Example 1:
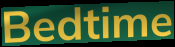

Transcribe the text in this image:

Bedtime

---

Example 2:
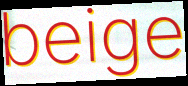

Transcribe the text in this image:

beige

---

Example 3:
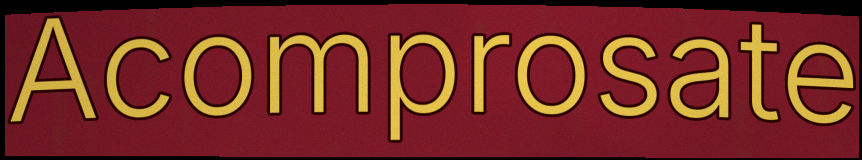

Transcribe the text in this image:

Acomprosate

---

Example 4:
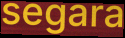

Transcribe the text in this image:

segara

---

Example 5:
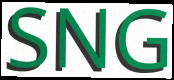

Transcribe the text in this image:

SNG